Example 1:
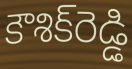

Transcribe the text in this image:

కౌశిక్‌రెడ్డి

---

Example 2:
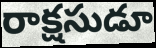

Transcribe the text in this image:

రాక్షసుడూ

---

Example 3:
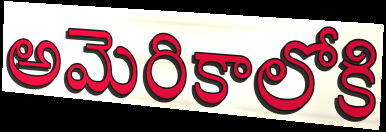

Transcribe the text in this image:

అమెరికాలోకి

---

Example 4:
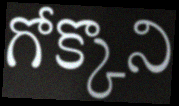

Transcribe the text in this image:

గోక్కొని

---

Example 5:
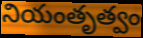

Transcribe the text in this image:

నియంతృత్వం